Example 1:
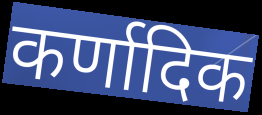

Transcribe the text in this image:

कर्णादिक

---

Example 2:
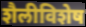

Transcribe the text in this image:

शैलीविशेष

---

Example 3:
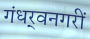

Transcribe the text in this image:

गंधर्वनगरीं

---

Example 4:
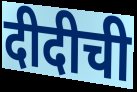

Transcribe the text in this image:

दीदीची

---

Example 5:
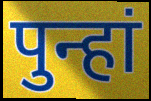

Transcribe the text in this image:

पुन्हां